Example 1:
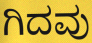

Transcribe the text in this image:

ಗಿದವು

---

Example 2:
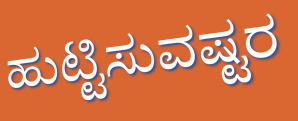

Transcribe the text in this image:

ಹುಟ್ಟಿಸುವಷ್ಟರ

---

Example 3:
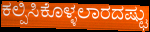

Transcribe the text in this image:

ಕಲ್ಪಿಸಿಕೊಳ್ಳಲಾರದಷ್ಟು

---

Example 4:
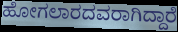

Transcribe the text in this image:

ಹೋಗಲಾರದವರಾಗಿದ್ದಾರೆ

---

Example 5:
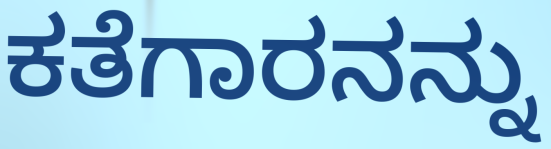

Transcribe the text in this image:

ಕತೆಗಾರನನ್ನು